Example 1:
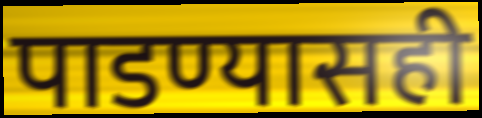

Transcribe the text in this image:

पाडण्यासही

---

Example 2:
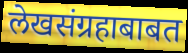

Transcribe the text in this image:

लेखसंग्रहाबाबत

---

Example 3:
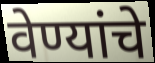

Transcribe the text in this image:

वेण्यांचे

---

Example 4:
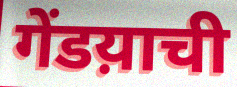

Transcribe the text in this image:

गेंडय़ाची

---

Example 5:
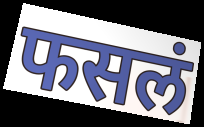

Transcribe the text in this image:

फसलं